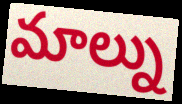
మాల్ను